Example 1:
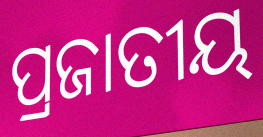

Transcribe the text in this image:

ପ୍ରଜାତୀୟ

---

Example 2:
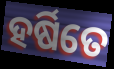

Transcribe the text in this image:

ହର୍ଷିତେ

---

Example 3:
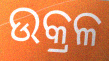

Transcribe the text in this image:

ଉକ୍ରଳ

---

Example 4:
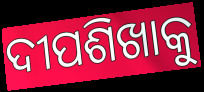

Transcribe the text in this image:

ଦୀପଶିଖାକୁ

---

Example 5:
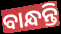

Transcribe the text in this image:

ବାନ୍ଧନ୍ତି